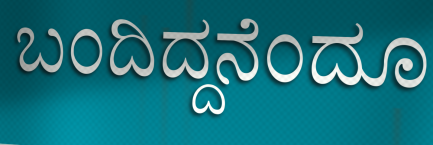
ಬಂದಿದ್ದನೆಂದೂ